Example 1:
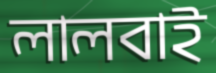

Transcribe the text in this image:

লালবাই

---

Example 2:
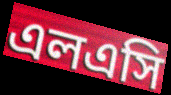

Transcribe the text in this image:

এলএসি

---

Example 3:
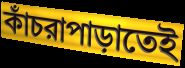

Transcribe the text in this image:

কাঁচরাপাড়াতেই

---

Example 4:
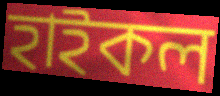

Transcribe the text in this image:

হাইকল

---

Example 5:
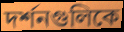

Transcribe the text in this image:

দর্শনগুলিকে